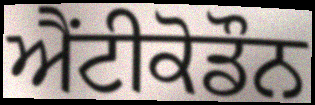
ਐਂਟੀਕੋਡੌਨ